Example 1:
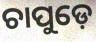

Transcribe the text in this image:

ଚାପୁଡ଼େ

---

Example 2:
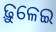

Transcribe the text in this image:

ଢ଼ୁଳେଇ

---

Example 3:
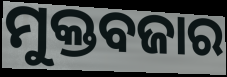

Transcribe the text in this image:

ମୁକ୍ତବଜାର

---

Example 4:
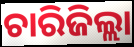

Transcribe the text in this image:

ଚାରିଜିଲ୍ଲା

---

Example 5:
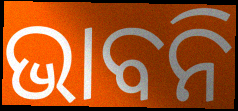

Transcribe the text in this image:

ଭାବନି